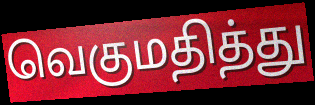
வெகுமதித்து